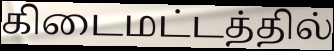
கிடைமட்டத்தில்